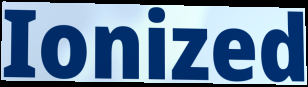
Ionized